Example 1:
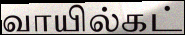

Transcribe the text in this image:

வாயில்கட்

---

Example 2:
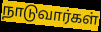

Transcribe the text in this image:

நாடுவார்கள்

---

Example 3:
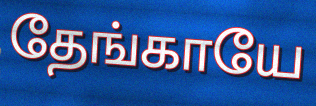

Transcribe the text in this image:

தேங்காயே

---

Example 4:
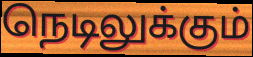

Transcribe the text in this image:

நெடிலுக்கும்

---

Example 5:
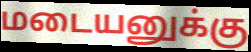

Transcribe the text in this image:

மடையனுக்கு